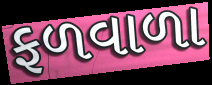
ફળવાળા